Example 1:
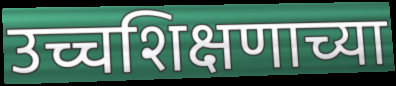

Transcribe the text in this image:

उच्चशिक्षणाच्या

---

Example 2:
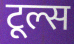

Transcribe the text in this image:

टूल्स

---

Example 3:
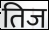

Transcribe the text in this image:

तिज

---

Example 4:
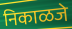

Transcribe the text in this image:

निकाळजे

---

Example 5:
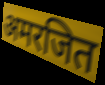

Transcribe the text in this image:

अमरजित